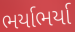
ભર્યાભર્યા